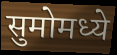
सुमोमध्ये